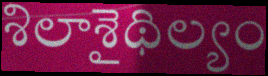
శిలాశైథిల్యం